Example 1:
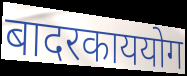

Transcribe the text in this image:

बादरकाययोग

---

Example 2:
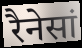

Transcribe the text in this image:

रैनेसां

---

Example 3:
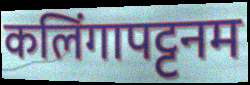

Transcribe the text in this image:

कलिंगापट्टनम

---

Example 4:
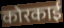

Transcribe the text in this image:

कोरकाई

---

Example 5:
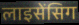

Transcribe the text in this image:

लाइसेंसिग